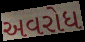
અવરોધ